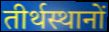
तीर्थस्थानों